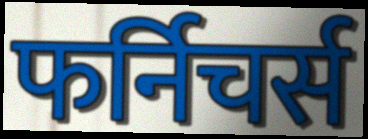
फर्निचर्स